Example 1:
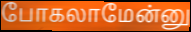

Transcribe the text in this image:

போகலாமேன்னு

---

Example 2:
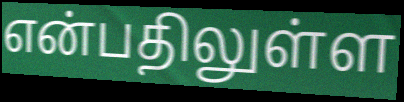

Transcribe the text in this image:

என்பதிலுள்ள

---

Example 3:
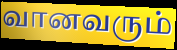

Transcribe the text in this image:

வானவரும்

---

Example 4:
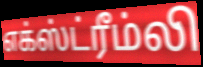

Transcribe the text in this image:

எக்ஸ்ட்ரீம்லி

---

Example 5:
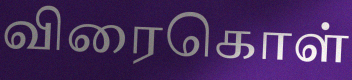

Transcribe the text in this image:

விரைகொள்